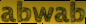
abwab